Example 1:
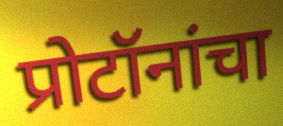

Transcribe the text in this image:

प्रोटॉनांचा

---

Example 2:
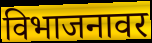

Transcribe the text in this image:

विभाजनावर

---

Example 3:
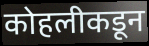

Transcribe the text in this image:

कोहलीकडून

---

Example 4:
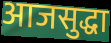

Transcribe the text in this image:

आजसुद्धा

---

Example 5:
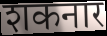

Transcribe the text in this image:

शकनार